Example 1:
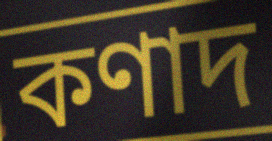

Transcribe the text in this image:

কণাদ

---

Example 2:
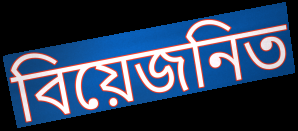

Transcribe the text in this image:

বিয়েজনিত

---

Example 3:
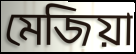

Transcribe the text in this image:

মেজিয়া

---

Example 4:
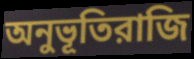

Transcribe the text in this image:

অনুভূতিরাজি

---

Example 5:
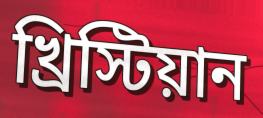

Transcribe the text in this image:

খ্রিস্টিয়ান